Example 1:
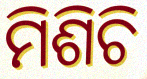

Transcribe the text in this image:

ମିଶିଚି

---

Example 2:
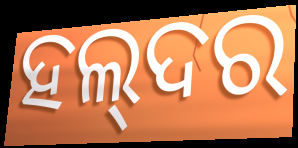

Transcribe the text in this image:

ହଲ୍‌ଦର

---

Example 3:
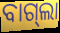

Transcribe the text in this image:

ବାଗ୍‌ଲା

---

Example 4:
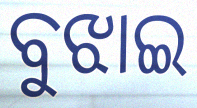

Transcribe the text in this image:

ବୁଝାଇ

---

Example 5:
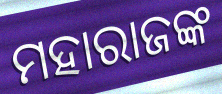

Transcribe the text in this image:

ମହାରାଜଙ୍କ